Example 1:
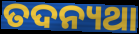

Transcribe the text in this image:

ତଦନ୍ୟଥା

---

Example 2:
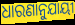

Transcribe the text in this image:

ଧାରଣାନୁଯାୟୀ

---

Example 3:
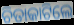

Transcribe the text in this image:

ଚିତାକାଟିଲେ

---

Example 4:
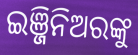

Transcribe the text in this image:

ଇଞ୍ଜିନିଅରଙ୍କୁ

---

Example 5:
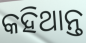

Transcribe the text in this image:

କହିଥାନ୍ତ